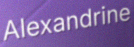
Alexandrine